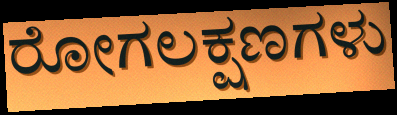
ರೋಗಲಕ್ಷಣಗಳು